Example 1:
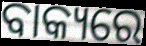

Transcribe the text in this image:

ବାକ୍ୟରେ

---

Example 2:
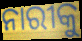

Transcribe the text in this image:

ନାରୀକୁ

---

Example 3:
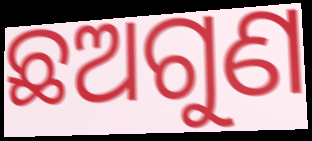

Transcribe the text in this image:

ଛଅଗୁଣ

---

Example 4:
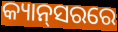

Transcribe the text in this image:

କ୍ୟାନ୍‌ସରରେ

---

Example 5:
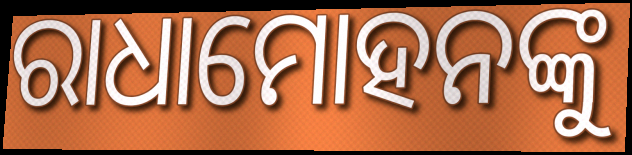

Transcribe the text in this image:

ରାଧାମୋହନଙ୍କୁ